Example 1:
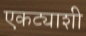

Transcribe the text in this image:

एकट्याशी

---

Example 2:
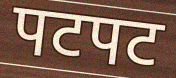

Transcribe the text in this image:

पटपट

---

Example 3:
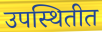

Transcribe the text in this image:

उपस्थितीत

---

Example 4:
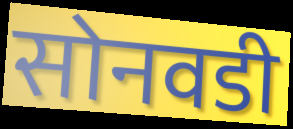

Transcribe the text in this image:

सोनवडी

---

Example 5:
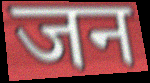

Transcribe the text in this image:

जन